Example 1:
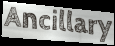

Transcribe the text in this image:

Ancillary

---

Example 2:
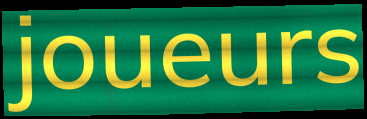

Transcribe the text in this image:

joueurs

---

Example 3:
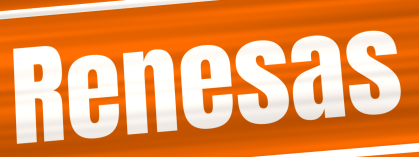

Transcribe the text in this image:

Renesas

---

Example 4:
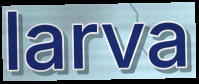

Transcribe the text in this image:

larva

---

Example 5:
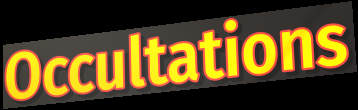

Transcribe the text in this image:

Occultations